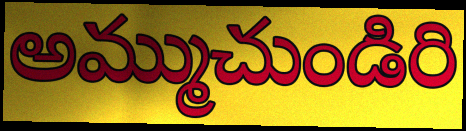
అమ్ముచుండిరి